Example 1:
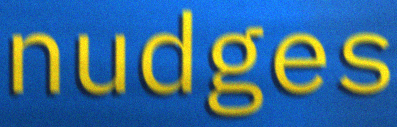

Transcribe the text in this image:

nudges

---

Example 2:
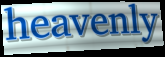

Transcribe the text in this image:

heavenly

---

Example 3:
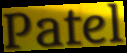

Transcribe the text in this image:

Patel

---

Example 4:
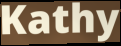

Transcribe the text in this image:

Kathy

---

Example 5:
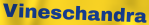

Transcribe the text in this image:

Vineschandra